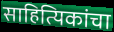
साहित्यिकांचा